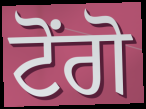
ਟੋਂਗੋ